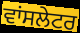
ਵਾਂਸਲੇਟਰ